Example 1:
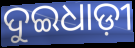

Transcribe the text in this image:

ଦୁଇଧାଡ଼ୀ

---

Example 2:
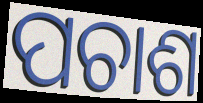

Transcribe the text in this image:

ପଚାଶ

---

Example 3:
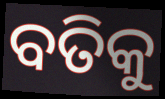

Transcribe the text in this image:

ବତିକୁ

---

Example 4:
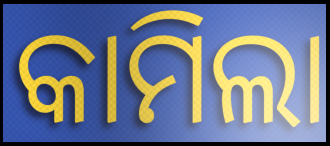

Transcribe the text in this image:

କାମିଲା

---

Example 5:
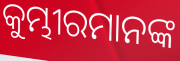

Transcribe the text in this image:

କୁମ୍ଭୀରମାନଙ୍କ